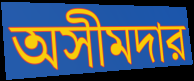
অসীমদার